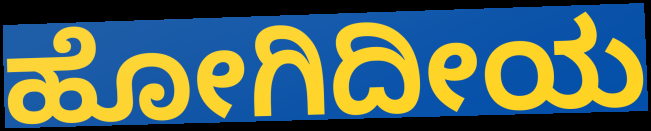
ಹೋಗಿದೀಯ